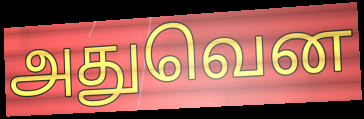
அதுவென